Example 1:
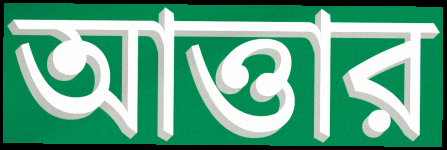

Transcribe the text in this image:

আত্তার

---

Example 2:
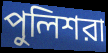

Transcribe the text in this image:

পুলিশরা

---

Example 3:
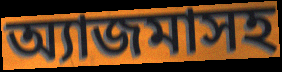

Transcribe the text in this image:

অ্যাজমাসহ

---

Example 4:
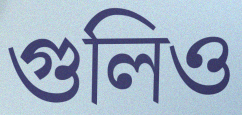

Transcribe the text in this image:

গুলিও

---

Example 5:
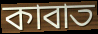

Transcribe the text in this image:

কাবাত